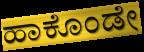
ಹಾಕೊಂಡೇ